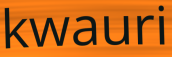
kwauri